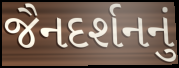
જૈનદર્શનનું